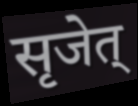
सृजेत्